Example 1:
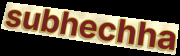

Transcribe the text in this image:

subhechha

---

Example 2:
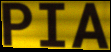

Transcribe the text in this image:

PIA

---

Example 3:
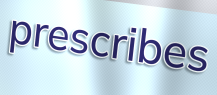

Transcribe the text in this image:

prescribes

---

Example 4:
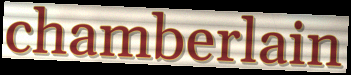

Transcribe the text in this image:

chamberlain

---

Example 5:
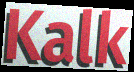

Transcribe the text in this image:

Kalk